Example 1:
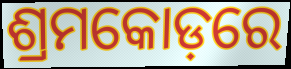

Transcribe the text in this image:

ଶ୍ରମକୋଡ଼ରେ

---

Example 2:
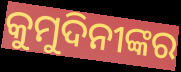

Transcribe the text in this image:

କୁମୁଦିନୀଙ୍କର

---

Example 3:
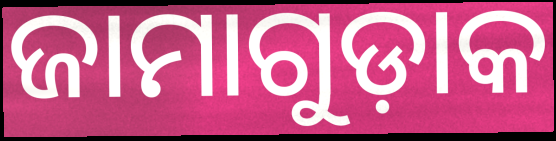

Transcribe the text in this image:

ଜାମାଗୁଡ଼ାକ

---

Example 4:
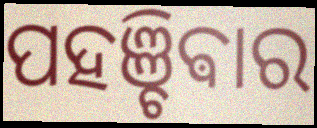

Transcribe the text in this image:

ପହଞ୍ଚିଵାର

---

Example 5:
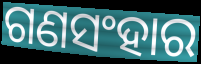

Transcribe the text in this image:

ଗଣସଂହାର